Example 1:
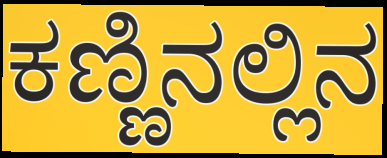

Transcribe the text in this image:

ಕಣ್ಣಿನಲ್ಲಿನ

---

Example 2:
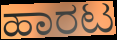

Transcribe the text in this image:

ಹಾರಟ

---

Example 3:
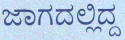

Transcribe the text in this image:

ಜಾಗದಲ್ಲಿದ್ದ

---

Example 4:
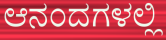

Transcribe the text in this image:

ಆನಂದಗಳಲ್ಲಿ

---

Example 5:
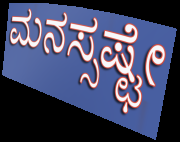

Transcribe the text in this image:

ಮನಸ್ಸಷ್ಟೇ